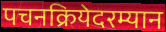
पचनक्रियेदरम्यान